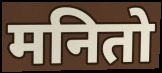
मनितो